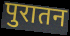
पुरातन